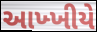
આખ્ખીયે